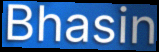
Bhasin